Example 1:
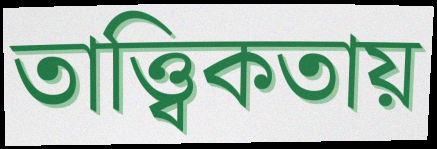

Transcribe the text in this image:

তাত্ত্বিকতায়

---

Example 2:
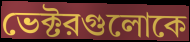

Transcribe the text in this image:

ভেক্টরগুলোকে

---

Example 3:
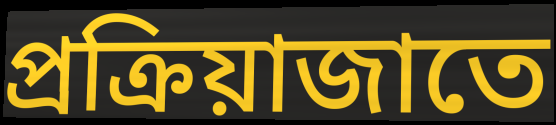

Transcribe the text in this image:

প্রক্রিয়াজাতে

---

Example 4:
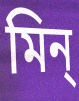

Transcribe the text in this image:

মিন্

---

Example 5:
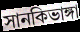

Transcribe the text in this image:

সানকিভাঙ্গা